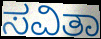
ಸವಿತಾ